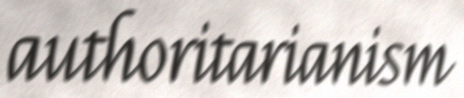
authoritarianism